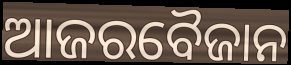
ଆଜରବୈଜାନ